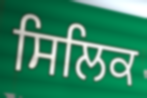
ਸਿਲਿਕ